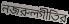
নজরুলগীতির